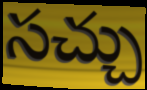
సచ్చు